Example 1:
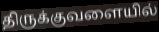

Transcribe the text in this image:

திருக்குவளையில்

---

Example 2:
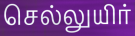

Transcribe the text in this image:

செல்லுயிர்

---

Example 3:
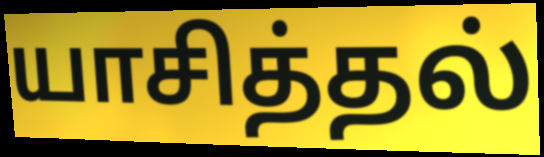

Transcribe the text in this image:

யாசித்தல்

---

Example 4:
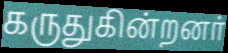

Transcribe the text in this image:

கருதுகின்றனர்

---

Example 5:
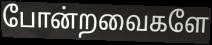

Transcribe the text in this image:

போன்றவைகளே